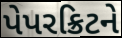
પેપરક્રિટને